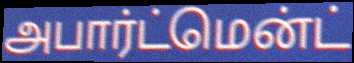
அபார்ட்மென்ட்